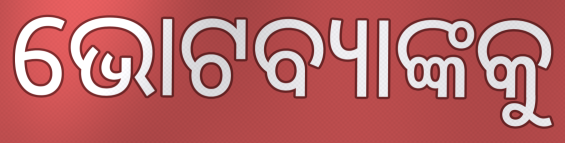
ଭୋଟବ୍ୟାଙ୍କକୁ